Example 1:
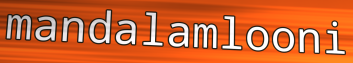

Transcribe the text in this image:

mandalamlooni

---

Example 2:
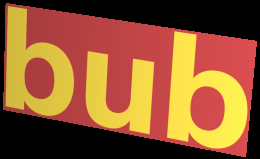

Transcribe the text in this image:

bub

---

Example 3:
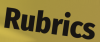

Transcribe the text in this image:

Rubrics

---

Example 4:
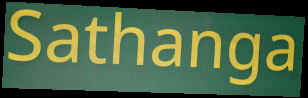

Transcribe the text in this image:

Sathanga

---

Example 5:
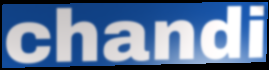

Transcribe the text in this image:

chandi